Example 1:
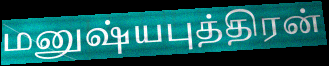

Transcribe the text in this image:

மனுஷ்யபுத்திரன்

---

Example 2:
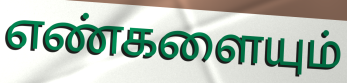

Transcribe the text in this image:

எண்களையும்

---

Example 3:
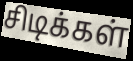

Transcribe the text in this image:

சிடிக்கள்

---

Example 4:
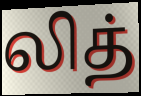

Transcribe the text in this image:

லித்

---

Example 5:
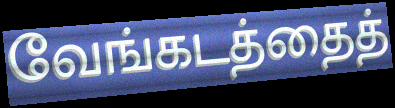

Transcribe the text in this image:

வேங்கடத்தைத்